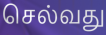
செல்வது